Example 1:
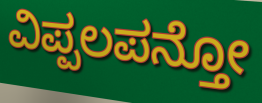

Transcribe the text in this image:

ವಿಪ್ಪಲಪನ್ತೋ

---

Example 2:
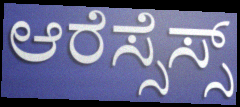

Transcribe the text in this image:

ಆರೆಸ್ಸೆಸ್ಸ್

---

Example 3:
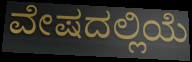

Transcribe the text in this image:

ವೇಷದಲ್ಲಿಯೆ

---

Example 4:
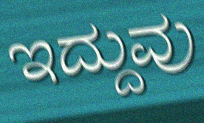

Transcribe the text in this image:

ಇದ್ದುವು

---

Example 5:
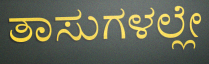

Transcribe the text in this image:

ತಾಸುಗಳಲ್ಲೇ